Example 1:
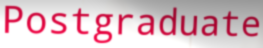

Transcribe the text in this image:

Postgraduate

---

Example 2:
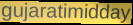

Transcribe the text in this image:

gujaratimidday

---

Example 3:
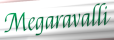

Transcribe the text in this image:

Megaravalli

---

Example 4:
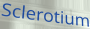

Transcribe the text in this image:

Sclerotium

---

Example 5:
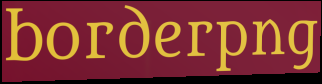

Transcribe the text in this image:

borderpng